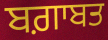
ਬਗ਼ਾਬਤ